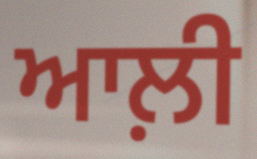
ਆਲ਼ੀ